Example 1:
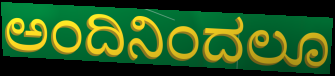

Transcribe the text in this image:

ಅಂದಿನಿಂದಲೂ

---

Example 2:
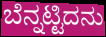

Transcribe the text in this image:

ಬೆನ್ನಟ್ಟಿದನು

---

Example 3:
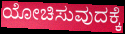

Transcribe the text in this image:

ಯೋಚಿಸುವುದಕ್ಕೆ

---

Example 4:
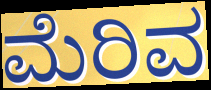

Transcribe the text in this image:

ಮೆರಿವ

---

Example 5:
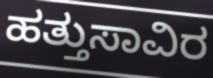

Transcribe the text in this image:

ಹತ್ತುಸಾವಿರ